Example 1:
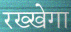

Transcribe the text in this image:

रख्खेगा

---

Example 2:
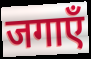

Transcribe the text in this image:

जगाएँ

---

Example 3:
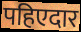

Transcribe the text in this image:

पहिएदार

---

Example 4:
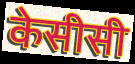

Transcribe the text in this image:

केसीसी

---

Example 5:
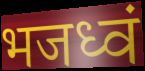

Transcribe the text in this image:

भजध्वं